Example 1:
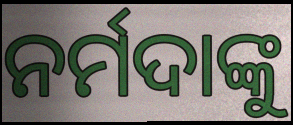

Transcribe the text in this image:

ନର୍ମଦାଙ୍କୁ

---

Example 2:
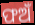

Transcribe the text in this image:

ଫଅଁ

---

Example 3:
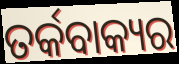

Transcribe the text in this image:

ତର୍କବାକ୍ୟର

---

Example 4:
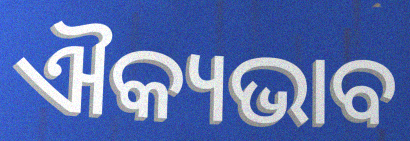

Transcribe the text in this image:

ଐକ୍ୟଭାବ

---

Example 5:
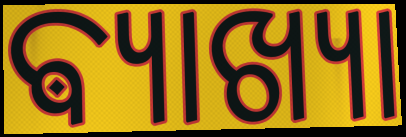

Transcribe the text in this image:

ଵ୍ଯାଖ୍ଯା